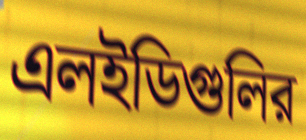
এলইডিগুলির